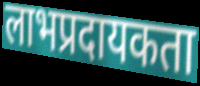
लाभप्रदायकता